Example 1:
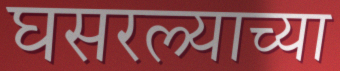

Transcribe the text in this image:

घसरल्याच्या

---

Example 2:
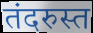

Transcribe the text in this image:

तंदरुस्त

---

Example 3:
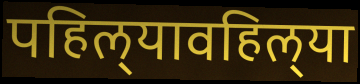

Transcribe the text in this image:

पहिल्यावहिल्या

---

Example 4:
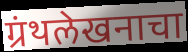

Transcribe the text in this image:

ग्रंथलेखनाचा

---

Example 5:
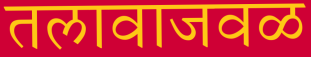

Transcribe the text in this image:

तलावाजवळ